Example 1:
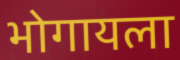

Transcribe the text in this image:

भोगायला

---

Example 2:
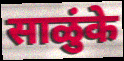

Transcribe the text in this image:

साळुंके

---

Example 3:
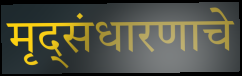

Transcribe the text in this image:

मृद्संधारणाचे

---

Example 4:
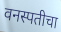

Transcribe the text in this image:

वनस्पतीचा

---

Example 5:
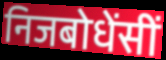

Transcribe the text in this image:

निजबोधेंसीं